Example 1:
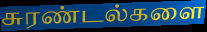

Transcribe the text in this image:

சுரண்டல்களை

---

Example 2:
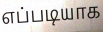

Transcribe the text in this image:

எப்படியாக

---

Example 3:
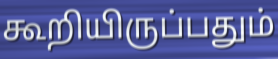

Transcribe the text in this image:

கூறியிருப்பதும்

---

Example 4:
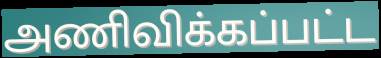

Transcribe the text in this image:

அணிவிக்கப்பட்ட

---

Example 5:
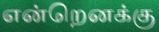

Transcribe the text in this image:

என்றெனக்கு